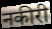
नकीरी